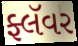
ફ્લૅવર